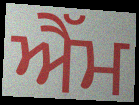
ਐੈੱਮ